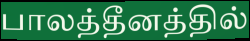
பாலத்தீனத்தில்